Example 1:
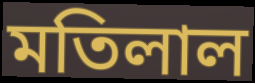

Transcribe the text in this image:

মতিলাল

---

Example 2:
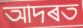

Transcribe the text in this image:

আদৰত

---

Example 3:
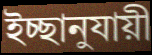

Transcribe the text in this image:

ইচ্ছানুযায়ী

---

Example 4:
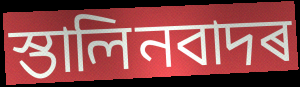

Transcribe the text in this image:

স্তালিনবাদৰ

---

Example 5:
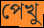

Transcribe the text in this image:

পেখু